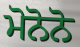
ਮੋਨੋਨੋ